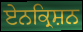
ਏਨਕ੍ਰਿਸ਼ਨ